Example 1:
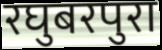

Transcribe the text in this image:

रघुबरपुरा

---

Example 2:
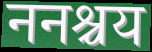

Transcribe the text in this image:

ननश्चय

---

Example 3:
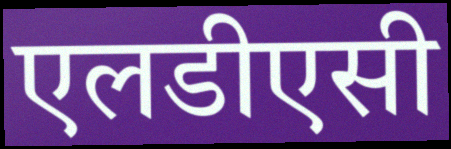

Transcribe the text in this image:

एलडीएसी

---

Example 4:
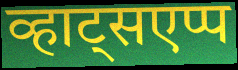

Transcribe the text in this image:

व्हाट्सएप्प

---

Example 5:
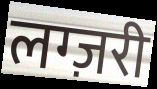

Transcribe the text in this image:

लग्ज़री